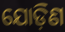
ଯୋଡ଼ିଣ